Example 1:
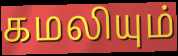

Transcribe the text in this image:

கமலியும்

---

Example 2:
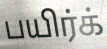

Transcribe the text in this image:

பயிர்க்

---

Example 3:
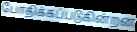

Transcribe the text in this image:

போதிக்கப்படுகின்றன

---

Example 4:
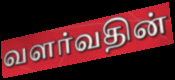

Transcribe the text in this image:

வளர்வதின்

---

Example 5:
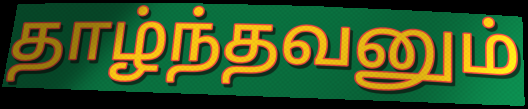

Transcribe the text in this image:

தாழ்ந்தவனும்